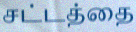
சட்டத்தை